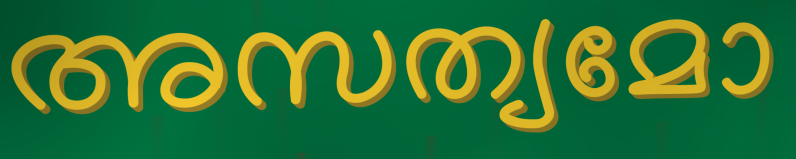
അസത്യമോ